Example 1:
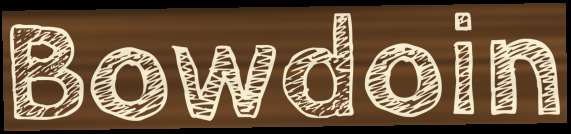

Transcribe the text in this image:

Bowdoin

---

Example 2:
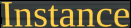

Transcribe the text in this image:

Instance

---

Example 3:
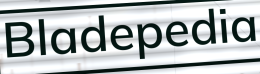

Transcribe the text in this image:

Bladepedia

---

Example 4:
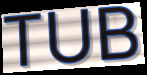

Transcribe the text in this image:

TUB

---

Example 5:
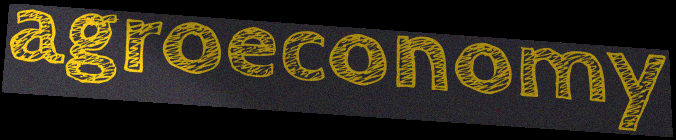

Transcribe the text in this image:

agroeconomy